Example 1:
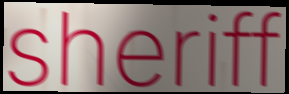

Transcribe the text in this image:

sheriff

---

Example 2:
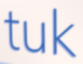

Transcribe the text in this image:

tuk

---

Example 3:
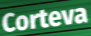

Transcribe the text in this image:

Corteva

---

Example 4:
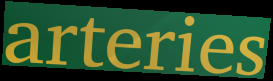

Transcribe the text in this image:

arteries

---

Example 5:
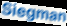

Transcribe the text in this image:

Siegman